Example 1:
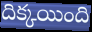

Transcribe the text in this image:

దిక్కయింది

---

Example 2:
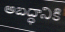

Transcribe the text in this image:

అబద్ధానికి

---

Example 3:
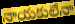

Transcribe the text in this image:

నాయకులేనా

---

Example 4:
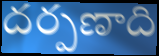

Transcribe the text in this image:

దర్పణాది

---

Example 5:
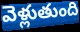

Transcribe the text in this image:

వెళ్లుతుంది